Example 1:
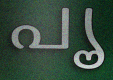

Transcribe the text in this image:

പൄ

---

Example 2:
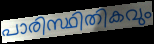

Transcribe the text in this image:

പാരിസ്ഥിതികവും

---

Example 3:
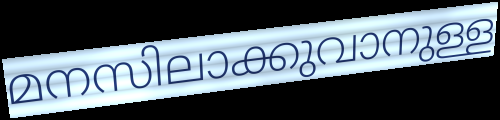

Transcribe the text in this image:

മനസിലാക്കുവാനുള്ള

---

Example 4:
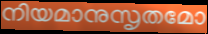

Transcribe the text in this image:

നിയമാനുസൃതമോ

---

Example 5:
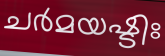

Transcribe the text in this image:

ചർമയഷ്ടിഃ